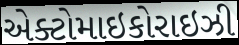
એક્ટોમાઇકોરાઇઝી